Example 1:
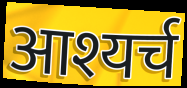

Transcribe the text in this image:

आश्यर्च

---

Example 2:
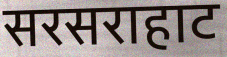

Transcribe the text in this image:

सरसराहाट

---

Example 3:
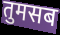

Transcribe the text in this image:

तुमसब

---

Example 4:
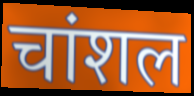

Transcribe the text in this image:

चांशल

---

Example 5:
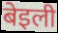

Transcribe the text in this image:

बेइली